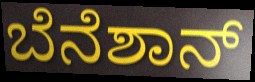
ಬೆನೆಶಾನ್